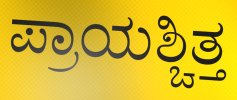
ಪ್ರಾಯಶ್ಚಿತ್ತ